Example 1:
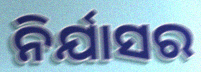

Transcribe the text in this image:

ନିର୍ଯାସର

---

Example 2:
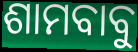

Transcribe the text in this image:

ଶାମବାବୁ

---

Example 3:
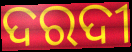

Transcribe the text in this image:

ଦରଦୀ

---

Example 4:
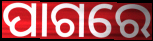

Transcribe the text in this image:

ପାଗରେ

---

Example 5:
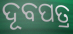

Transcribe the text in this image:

ଦୂବପତ୍ର